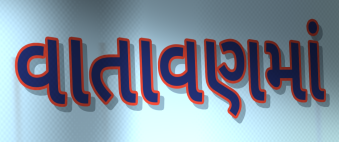
વાતાવણમાં